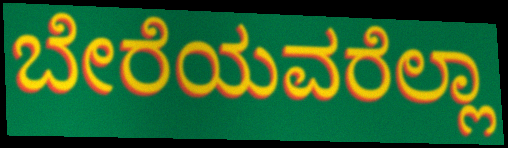
ಬೇರೆಯವರೆಲ್ಲಾ